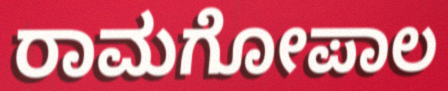
ರಾಮಗೋಪಾಲ